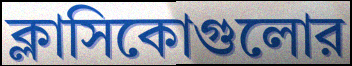
ক্লাসিকোগুলোর